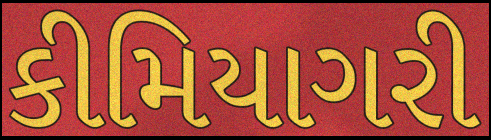
કીમિયાગરી